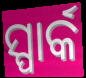
ସ୍ପାର୍କ